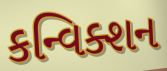
કન્વિક્શન